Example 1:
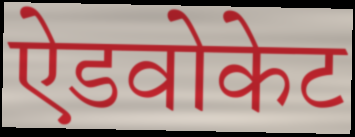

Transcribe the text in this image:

ऐडवोकेट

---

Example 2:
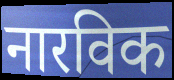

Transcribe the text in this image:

नारविक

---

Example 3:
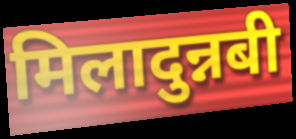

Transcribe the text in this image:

मिलादुन्नबी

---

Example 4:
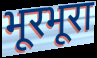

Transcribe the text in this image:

भूरभूरा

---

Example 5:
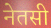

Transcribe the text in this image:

नेतसी